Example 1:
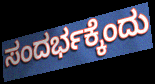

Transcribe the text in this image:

ಸಂದರ್ಭಕ್ಕೆಂದು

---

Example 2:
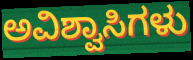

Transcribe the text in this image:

ಅವಿಶ್ವಾಸಿಗಳು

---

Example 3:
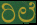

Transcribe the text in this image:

ರಿಲೆ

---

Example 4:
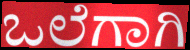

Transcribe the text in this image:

ಒಲೆಗಾಗಿ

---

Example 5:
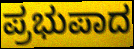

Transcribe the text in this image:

ಪ್ರಭುಪಾದ